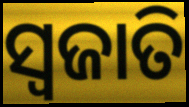
ସ୍ବଜାତି